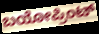
ಬಯೋಪ್ರಿಂಟ್